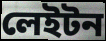
লেইটন